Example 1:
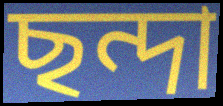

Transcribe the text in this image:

ছন্দা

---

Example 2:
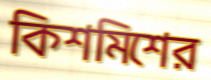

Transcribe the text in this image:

কিশমিশের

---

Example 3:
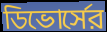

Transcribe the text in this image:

ডিভোর্সের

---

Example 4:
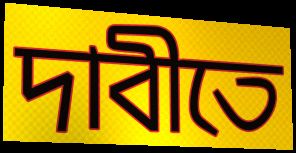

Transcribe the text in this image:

দাবীতে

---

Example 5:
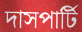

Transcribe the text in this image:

দাসপার্টি